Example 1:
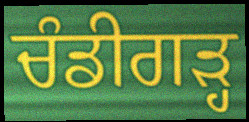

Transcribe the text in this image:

ਚੰਡੀਗੜ੍ਹ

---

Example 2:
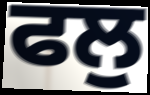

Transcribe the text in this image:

ਫਲੁ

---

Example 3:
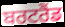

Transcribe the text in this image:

ਬਰਟਰੈਂਡ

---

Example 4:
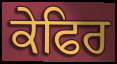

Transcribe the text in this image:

ਕੇਫਿਰ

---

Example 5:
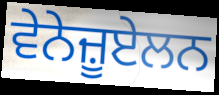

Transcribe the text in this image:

ਵੇਨੇਜ਼ੂਏਲਨ